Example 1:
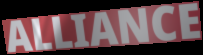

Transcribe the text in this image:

ALLIANCE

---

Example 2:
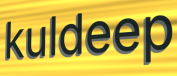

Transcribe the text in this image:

kuldeep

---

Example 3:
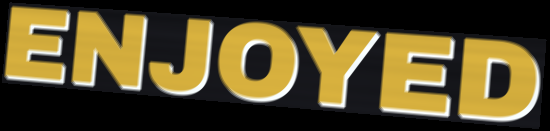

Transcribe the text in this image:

ENJOYED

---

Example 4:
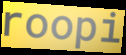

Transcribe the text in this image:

roopi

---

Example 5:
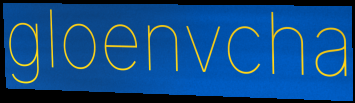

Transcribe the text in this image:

gloenvcha